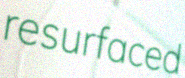
resurfaced